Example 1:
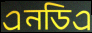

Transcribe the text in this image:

এনডিএ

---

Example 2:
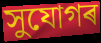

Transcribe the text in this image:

সুযোগৰ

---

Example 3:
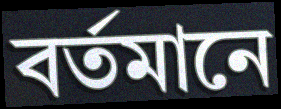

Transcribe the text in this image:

বৰ্তমানে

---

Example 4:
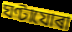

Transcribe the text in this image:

ঘণ্টাযোৰা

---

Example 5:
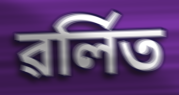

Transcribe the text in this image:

ৱৰ্লিত